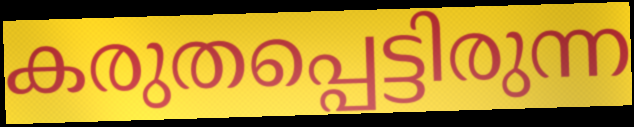
കരുതപ്പെട്ടിരുന്ന